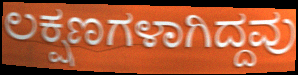
ಲಕ್ಷಣಗಳಾಗಿದ್ದವು